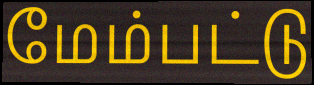
மேம்பட்டு